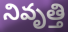
నివృత్తి